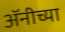
ॲनीच्या